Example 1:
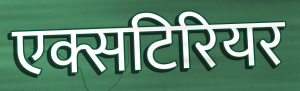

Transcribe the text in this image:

एक्सटिरियर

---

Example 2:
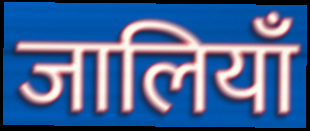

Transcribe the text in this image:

जालियाँ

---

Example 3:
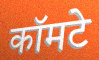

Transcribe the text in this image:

कॉमटे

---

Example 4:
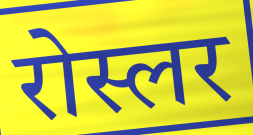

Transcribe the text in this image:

रोस्लर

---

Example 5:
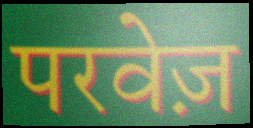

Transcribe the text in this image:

परवेज़